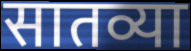
सातव्या